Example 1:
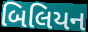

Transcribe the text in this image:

બિલિયન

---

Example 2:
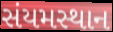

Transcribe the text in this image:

સંયમસ્થાન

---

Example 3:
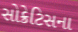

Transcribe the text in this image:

સોક્રેટિસના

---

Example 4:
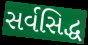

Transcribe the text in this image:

સર્વસિદ્ધ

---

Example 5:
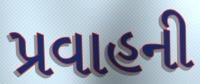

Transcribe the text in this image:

પ્રવાહની